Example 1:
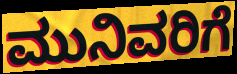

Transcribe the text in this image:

ಮುನಿವರಿಗೆ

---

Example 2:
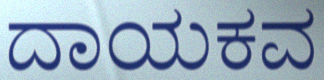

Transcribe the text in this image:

ದಾಯಕವ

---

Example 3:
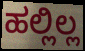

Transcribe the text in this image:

ಹಲ್ಲಿಲ್ಲ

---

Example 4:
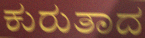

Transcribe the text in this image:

ಕುರುತಾದ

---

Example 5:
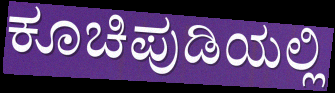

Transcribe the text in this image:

ಕೂಚಿಪುಡಿಯಲ್ಲಿ